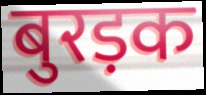
बुरड़क